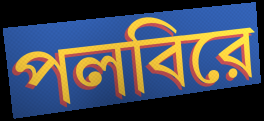
পলবিরে